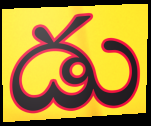
డు